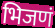
भिजणं